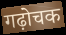
गढ़ोचक